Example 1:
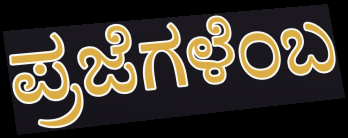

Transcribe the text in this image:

ಪ್ರಜೆಗಳೆಂಬ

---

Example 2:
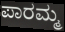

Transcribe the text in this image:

ಪಾರಮ್ಮ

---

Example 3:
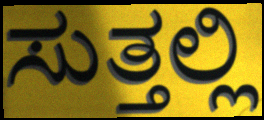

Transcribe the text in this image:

ಸುತ್ತಲ್ಲಿ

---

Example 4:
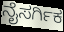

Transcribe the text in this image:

ನೈಸರ್ಗಿಕ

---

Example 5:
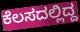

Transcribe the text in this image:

ಕೆಲಸದಲ್ಲಿದ್ದ